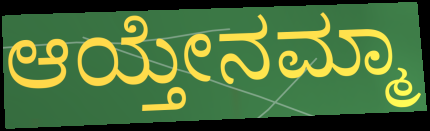
ಆಯ್ತೇನಮ್ಮಾ